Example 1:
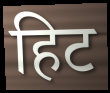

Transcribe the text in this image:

हिट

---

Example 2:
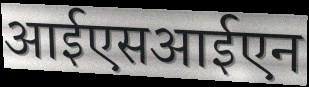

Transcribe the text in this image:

आईएसआईएन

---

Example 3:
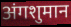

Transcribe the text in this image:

अंगशुमान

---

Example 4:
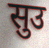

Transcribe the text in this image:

सुउ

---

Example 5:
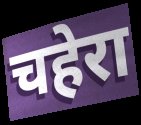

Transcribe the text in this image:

चहेरा